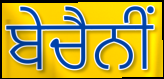
ਬੇਚੈਨੀਂ